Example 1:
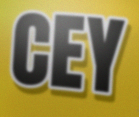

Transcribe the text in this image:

CEY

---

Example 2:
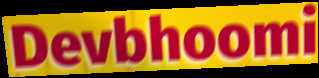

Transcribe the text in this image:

Devbhoomi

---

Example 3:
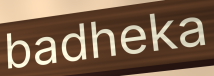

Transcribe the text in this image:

badheka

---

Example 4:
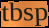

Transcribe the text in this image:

tbsp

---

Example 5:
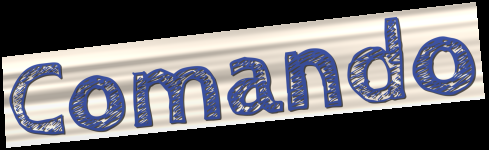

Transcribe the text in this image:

Comando